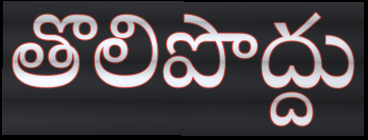
తొలిపొద్దు